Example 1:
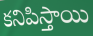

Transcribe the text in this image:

కనిపిస్తాయి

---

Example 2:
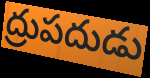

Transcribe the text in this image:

ద్రుపదుడు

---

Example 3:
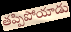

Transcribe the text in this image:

తప్పిపోయాడు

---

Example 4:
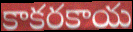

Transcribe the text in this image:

కాకరకాయ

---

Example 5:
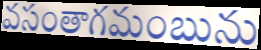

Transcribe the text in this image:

వసంతాగమంబును